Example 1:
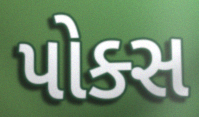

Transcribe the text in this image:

પોક્સ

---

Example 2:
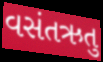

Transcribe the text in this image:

વસંતઋતુ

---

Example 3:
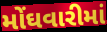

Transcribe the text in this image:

મોંઘવારીમાં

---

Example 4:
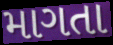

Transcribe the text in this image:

માગતા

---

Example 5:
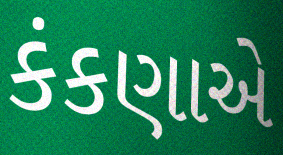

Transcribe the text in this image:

કંકણાએ